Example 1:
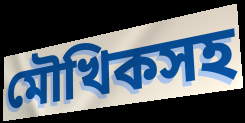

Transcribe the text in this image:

মৌখিকসহ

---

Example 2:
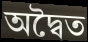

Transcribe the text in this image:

অদ্বৈত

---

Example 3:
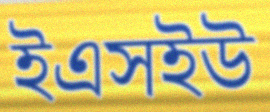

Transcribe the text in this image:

ইএসইউ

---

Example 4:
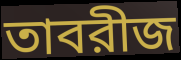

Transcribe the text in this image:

তাবরীজ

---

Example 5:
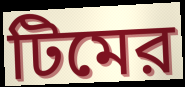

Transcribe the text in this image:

টিমের